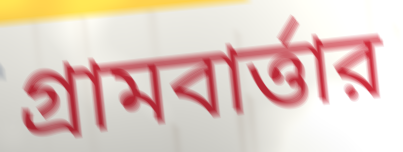
গ্রামবার্ত্তার